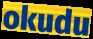
okudu